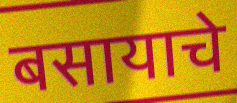
बसायाचे